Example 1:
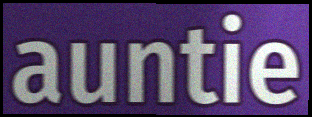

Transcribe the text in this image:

auntie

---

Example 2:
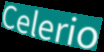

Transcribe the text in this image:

Celerio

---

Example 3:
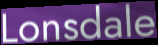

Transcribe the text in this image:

Lonsdale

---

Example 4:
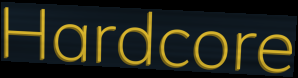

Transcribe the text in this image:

Hardcore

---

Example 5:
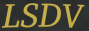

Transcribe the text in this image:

LSDV